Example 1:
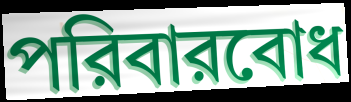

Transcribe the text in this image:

পরিবারবোধ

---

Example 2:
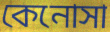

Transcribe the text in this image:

কেনোসা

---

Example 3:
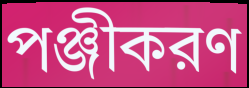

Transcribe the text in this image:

পঞ্জীকরণ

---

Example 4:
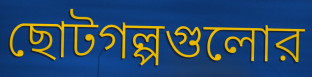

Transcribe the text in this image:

ছোটগল্পগুলোর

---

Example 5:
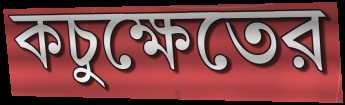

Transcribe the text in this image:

কচুক্ষেতের